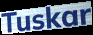
Tuskar